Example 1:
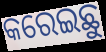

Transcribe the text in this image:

କରେଇଛୁ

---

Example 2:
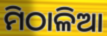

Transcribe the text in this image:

ମିଠାଳିଆ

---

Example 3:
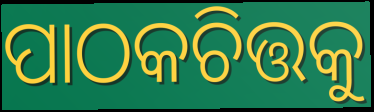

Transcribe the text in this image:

ପାଠକଚିତ୍ତକୁ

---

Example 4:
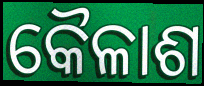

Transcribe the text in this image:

କୈଳାଶ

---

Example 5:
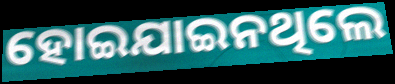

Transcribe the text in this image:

ହୋଇଯାଇନଥିଲେ